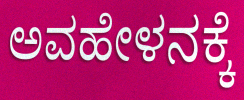
ಅವಹೇಳನಕ್ಕೆ